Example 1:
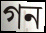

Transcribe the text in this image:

গন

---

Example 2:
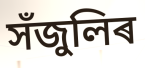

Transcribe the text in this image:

সঁজুলিৰ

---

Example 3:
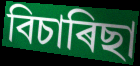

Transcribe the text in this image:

বিচাৰিছা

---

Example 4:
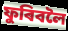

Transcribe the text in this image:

ফুৰিবলৈ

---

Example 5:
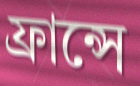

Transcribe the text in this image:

ফ্ৰান্সে